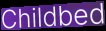
Childbed